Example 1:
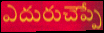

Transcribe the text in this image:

ఎదురుచెప్పే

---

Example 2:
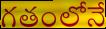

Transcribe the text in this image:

గతంలోనే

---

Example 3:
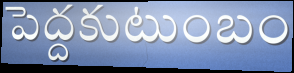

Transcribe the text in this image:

పెద్దకుటుంబం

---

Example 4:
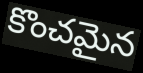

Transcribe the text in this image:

కొంచమైన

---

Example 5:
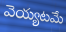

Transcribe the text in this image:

వెయ్యటమే